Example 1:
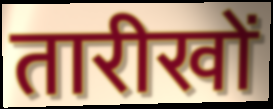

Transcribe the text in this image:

तारीखों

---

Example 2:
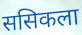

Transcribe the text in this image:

ससिकला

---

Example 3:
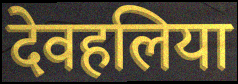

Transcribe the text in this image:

देवहलिया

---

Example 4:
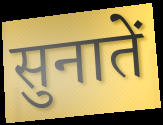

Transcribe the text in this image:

सुनातें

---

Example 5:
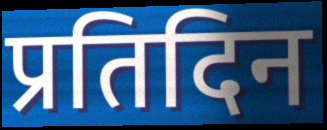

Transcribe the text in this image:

प्रतिदिन